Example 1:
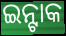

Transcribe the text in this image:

ଇନ୍ଟାକ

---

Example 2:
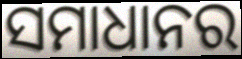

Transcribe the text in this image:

ସମାଧାନର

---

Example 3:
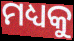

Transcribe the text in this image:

ମଧ୍ୟକୁ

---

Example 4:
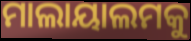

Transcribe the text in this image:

ମାଲାୟାଲମକୁ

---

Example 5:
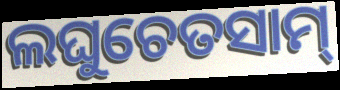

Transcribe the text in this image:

ଲଘୁଚେତସାମ୍